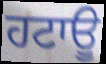
ਹਟਾਊ